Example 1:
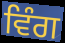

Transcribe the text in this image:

ਵਿੰਗ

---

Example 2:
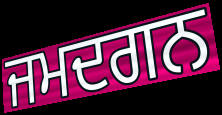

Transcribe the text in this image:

ਜਮਦਗਨ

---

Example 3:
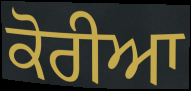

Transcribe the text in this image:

ਕੋਰੀਆ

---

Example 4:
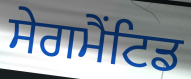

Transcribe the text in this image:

ਸੇਗਮੈਂਟਿਡ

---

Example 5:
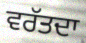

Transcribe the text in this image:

ਵਰੱਤਦਾ